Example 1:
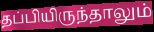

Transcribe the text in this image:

தப்பியிருந்தாலும்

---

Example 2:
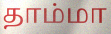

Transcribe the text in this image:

தாம்மா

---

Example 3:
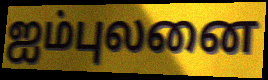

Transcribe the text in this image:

ஐம்புலனை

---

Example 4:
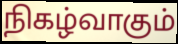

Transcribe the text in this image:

நிகழ்வாகும்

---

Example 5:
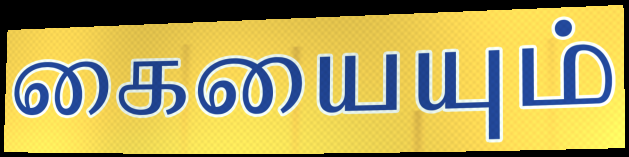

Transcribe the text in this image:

கையையும்